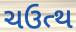
ચઉત્થ